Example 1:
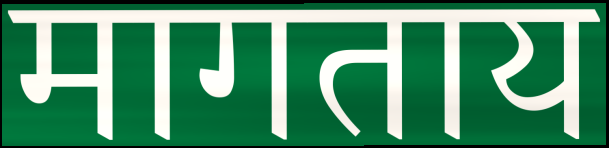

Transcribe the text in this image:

मागताय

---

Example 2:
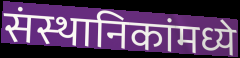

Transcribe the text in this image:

संस्थानिकांमध्ये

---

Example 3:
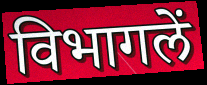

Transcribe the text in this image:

विभागलें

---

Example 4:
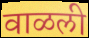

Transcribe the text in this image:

वाळली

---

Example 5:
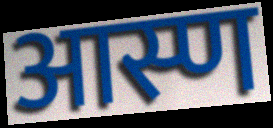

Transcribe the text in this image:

आस्ण